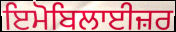
ਇਮੋਬਿਲਾਈਜ਼ਰ